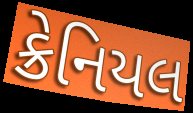
ક્રેનિયલ